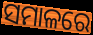
ସମାଳରେ